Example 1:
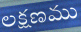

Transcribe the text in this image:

లక్షణము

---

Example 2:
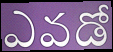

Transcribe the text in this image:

ఎవడో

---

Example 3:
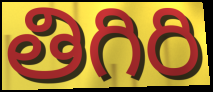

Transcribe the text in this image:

తిగిరి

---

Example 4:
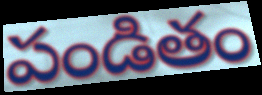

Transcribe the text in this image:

పండితం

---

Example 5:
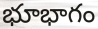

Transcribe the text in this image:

భూభాగం